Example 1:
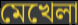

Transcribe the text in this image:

মেখেলা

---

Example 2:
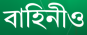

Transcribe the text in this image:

বাহিনীও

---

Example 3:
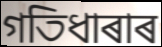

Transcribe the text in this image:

গতিধাৰাৰ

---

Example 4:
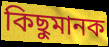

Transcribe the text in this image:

কিছুমানক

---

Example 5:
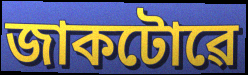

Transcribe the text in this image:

জাকটোৱে